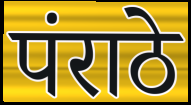
पंराठे